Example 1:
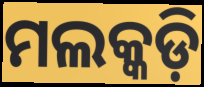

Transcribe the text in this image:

ମଲକ୍କଡ଼ି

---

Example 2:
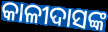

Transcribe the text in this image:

କାଳୀଦାସଙ୍କ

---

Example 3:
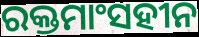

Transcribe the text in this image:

ରକ୍ତମାଂସହୀନ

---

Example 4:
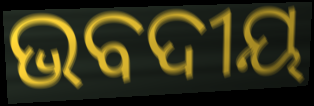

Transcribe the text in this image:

ଭବଦୀୟ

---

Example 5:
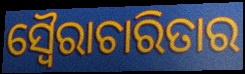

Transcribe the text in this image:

ସ୍ୱୈରାଚାରିତାର